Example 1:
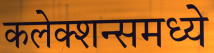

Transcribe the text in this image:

कलेक्शन्समध्ये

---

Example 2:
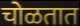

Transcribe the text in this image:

चोळतात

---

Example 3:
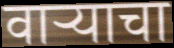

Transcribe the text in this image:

वाऱ्याचा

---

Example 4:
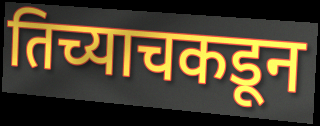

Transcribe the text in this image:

तिच्याचकडून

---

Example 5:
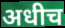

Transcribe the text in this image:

अधीच